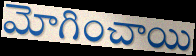
మోగించాయి